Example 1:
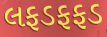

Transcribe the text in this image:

લફડફફડ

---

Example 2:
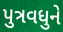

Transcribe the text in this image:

પુત્રવધુને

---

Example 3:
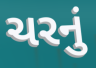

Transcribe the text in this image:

ચરનું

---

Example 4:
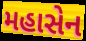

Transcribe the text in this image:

મહાસેન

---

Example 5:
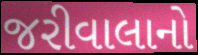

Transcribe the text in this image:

જરીવાલાનો